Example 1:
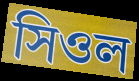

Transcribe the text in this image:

সিওল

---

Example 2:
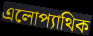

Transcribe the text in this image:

এলোপ্যাথিক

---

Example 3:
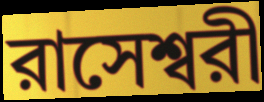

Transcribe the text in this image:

রাসেশ্বরী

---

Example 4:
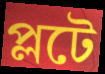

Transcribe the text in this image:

প্লটে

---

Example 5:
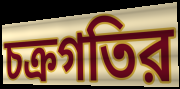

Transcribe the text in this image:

চক্রগতির